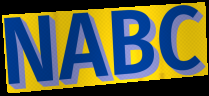
NABC